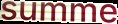
summe